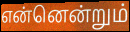
என்னென்றும்